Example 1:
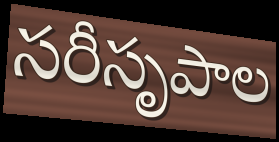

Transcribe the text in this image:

సరీసృపాల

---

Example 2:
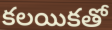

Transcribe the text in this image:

కలయికతో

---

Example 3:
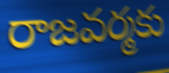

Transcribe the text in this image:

రాజవర్మకు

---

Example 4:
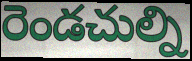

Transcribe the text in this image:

రెండచుల్ని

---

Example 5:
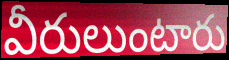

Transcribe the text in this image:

వీరులుంటారు